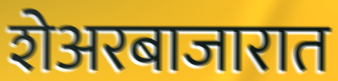
शेअरबाजारात